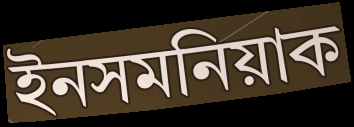
ইনসমনিয়াক